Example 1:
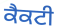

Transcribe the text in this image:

ਕੈਕਟੀ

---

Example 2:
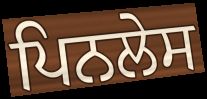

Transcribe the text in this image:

ਪਿਨਲੇਸ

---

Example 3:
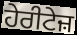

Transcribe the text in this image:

ਹੇਰੀਟੇਜ਼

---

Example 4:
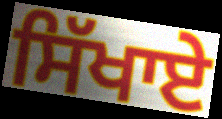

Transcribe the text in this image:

ਸਿੱਖਾਏ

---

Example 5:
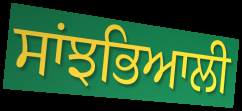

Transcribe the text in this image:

ਸਾਂਝਭਿਆਲੀ